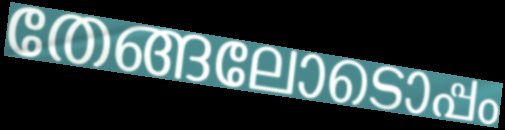
തേങ്ങലോടൊപ്പം